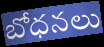
బోధనలు